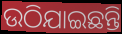
ଉଠିଯାଇଛନ୍ତି